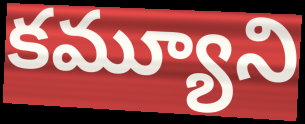
కమ్యూని